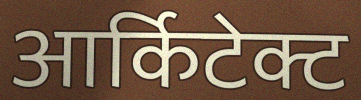
आर्किटेक्ट